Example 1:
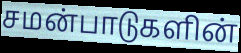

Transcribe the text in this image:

சமன்பாடுகளின்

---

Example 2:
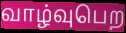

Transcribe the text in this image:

வாழ்வுபெற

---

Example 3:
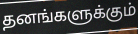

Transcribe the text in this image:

தனங்களுக்கும்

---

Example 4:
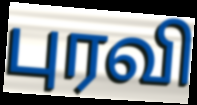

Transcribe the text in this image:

புரவி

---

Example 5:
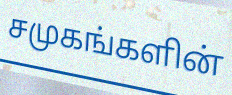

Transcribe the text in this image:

சமுகங்களின்